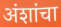
अंशांचा